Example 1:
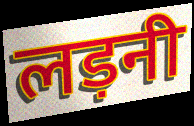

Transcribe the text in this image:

लड़नी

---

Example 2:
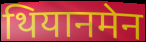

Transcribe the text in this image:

थियानमेन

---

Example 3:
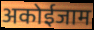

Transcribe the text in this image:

अकोईजाम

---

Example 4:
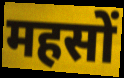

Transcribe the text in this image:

महसों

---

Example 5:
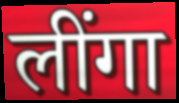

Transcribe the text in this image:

लींगा